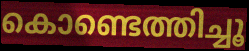
കൊണ്ടെത്തിച്ചൂ